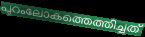
പുറംലോകത്തെത്തിച്ചത്